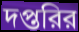
দপ্তরির